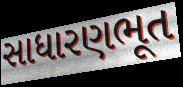
સાધારણભૂત